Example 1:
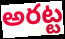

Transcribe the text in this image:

అరట్ట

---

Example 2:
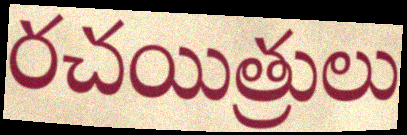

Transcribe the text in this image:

రచయిత్రులు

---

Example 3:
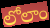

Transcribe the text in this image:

లోలాం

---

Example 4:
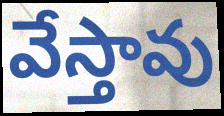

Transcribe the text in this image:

వేస్తావు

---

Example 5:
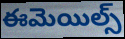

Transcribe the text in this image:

ఈమెయిల్స్